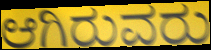
ಆಗಿರುವರು